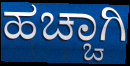
ಹಚ್ಚಾಗಿ